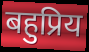
बहुप्रिय